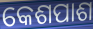
କେଶପାଶ